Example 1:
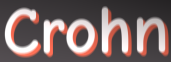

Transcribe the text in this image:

Crohn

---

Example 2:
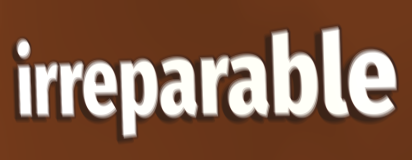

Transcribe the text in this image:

irreparable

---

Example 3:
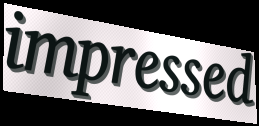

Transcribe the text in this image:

impressed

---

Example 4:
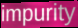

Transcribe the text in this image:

impurity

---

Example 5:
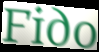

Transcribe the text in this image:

Fido